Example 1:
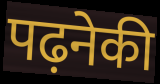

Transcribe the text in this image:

पढ़नेकी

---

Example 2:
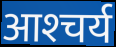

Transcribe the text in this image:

आश्‍चर्य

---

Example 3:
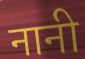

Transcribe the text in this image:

नानी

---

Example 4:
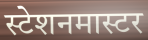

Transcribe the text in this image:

स्टेशनमास्टर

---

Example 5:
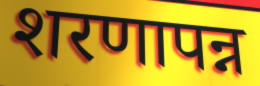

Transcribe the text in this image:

शरणापन्न